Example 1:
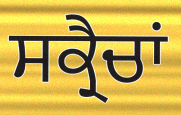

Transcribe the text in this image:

ਸਕ੍ਰੈਚਾਂ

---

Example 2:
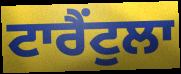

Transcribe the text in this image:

ਟਾਰੈਂਟੁਲਾ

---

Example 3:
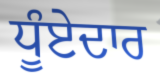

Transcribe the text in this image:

ਧੂੰਏਦਾਰ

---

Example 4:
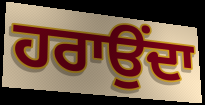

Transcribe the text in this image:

ਹਰਾਉਂਦਾ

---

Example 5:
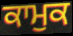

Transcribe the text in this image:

ਕਾਮੁਕ